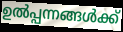
ഉൽപ്പന്നങ്ങൾക്ക്